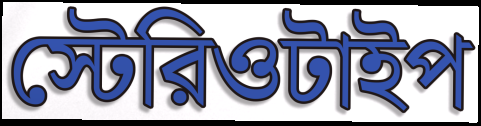
স্টেরিওটাইপ